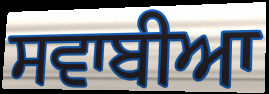
ਸਵਾਬੀਆ